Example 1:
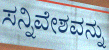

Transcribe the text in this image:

ಸನ್ನಿವೇಶವನ್ನು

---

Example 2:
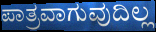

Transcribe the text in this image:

ಪಾತ್ರವಾಗುವುದಿಲ್ಲ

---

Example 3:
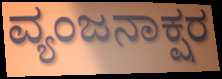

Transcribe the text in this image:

ವ್ಯಂಜನಾಕ್ಷರ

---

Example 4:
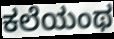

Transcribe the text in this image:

ಕಲೆಯಂಥ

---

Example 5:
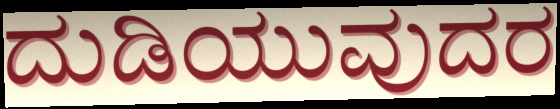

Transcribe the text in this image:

ದುಡಿಯುವುದರ